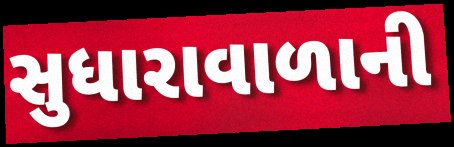
સુધારાવાળાની